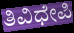
ತಿವಿಧೇಪಿ